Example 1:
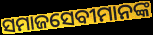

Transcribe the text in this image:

ସମାଜସେବୀମାନଙ୍କ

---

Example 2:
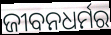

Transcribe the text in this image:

ଜୀବନଧର୍ମର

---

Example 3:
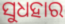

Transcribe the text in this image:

ସୁଧହାର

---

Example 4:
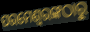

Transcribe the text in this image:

ପରମେଶ୍ଵରଙ୍କଠାରୁ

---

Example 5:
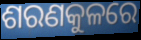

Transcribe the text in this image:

ଶରଣକୁଳରେ